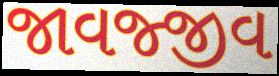
જાવજ્જીવ